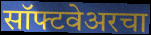
सॉफ्टवेअरचा